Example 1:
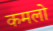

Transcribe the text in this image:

कमलो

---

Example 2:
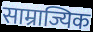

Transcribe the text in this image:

साम्राज्यिक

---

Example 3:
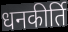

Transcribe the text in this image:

धनकीर्ति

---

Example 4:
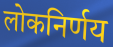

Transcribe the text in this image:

लोकनिर्णय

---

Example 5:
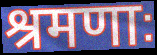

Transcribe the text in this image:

श्रमणाः